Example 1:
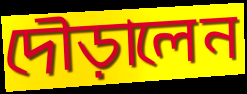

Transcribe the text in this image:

দৌড়ালেন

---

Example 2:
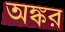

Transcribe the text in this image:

অঙ্কর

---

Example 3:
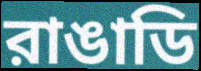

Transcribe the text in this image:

রাঙাডি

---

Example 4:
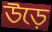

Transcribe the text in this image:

উড়ে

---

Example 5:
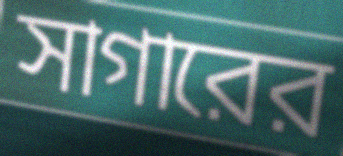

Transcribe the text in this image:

সাগারের